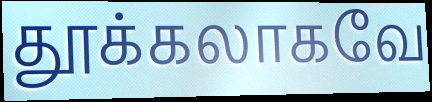
தூக்கலாகவே